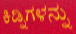
ಕಿಡ್ನಿಗಳನ್ನು